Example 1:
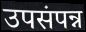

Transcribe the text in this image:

उपसंपन्न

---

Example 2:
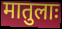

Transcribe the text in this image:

मातुलाः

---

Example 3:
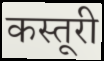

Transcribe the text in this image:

कस्तूरी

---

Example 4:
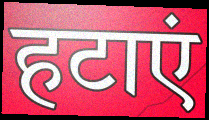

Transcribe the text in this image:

हटाएं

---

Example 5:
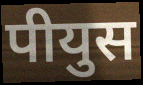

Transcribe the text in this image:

पीयुस